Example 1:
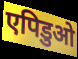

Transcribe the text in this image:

एपिडुओ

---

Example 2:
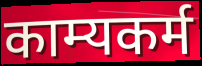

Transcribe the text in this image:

काम्यकर्म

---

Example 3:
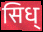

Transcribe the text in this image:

सिध्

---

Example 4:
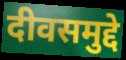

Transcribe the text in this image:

दीवसमुद्दे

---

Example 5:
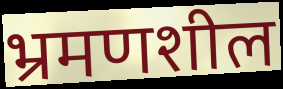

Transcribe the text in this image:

भ्रमणशील